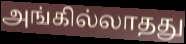
அங்கில்லாதது